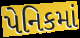
પેનિકમાં